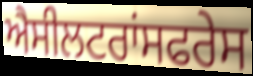
ਐਸੀਲਟਰਾਂਸਫਰੇਸ